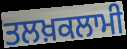
ਤਲਖ਼ਕਲਾਮੀ